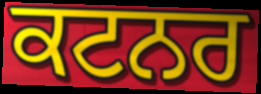
ਕਟਨਰ